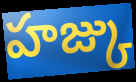
హజ్కు